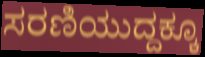
ಸರಣಿಯುದ್ದಕ್ಕೂ